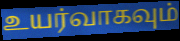
உயர்வாகவும்